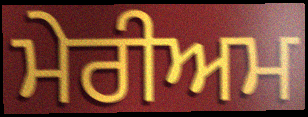
ਮੇਰੀਅਮ